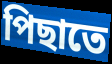
পিছাতে